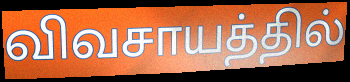
விவசாயத்தில்